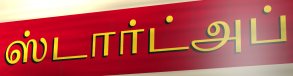
ஸ்டார்ட்அப்